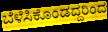
ಬೆಳೆಸಿಕೊಂಡದ್ದರಿಂದ